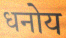
धनोय